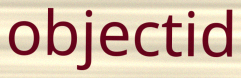
objectid